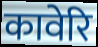
कावेरि